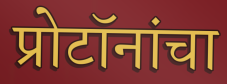
प्रोटॉनांचा